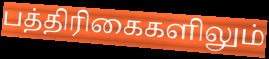
பத்திரிகைகளிலும்